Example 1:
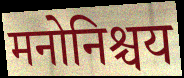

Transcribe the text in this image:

मनोनिश्चय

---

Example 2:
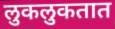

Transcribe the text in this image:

लुकलुकतात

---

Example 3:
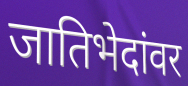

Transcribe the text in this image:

जातिभेदांवर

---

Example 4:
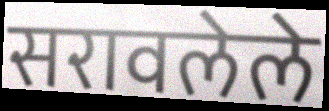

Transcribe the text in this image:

सरावलेले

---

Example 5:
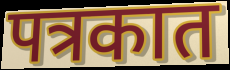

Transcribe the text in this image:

पत्रकात